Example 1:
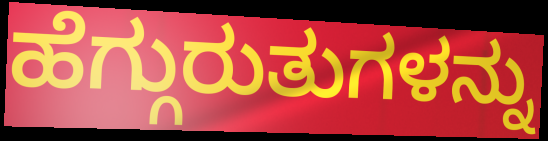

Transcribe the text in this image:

ಹೆಗ್ಗುರುತುಗಳನ್ನು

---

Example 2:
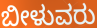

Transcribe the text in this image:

ಬೀಳುವರು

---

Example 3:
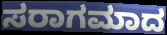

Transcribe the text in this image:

ಸರಾಗಮಾದ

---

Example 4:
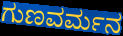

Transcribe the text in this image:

ಗುಣವರ್ಮನ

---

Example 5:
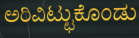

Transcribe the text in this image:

ಅರಿವಿಟ್ಟುಕೊಂಡು